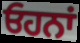
ਓਹਨਾਂ